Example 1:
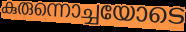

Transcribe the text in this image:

കുരുന്നൊച്ചയോടെ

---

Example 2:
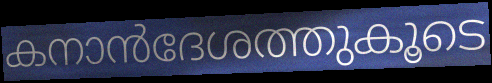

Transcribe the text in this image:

കനാൻദേശത്തുകൂടെ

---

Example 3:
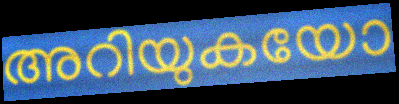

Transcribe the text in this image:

അറിയുകയോ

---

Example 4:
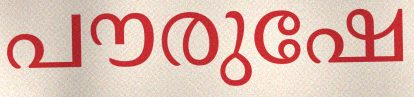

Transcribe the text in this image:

പൗരുഷേ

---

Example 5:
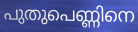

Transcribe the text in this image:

പുതുപെണ്ണിനെ